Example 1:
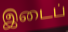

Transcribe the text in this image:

இடைப்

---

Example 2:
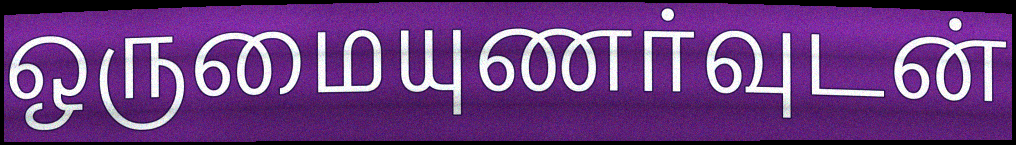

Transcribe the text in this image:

ஒருமையுணர்வுடன்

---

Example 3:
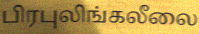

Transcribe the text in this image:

பிரபுலிங்கலீலை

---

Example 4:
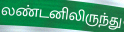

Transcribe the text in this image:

லண்டனிலிருந்து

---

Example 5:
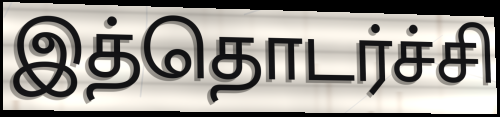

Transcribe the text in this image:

இத்தொடர்ச்சி